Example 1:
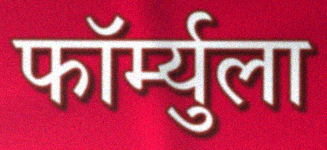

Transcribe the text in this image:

फॉर्म्युला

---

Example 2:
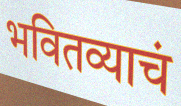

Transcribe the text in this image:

भवितव्याचं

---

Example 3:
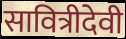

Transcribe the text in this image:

सावित्रीदेवी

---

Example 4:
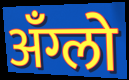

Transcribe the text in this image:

अँग्लो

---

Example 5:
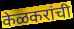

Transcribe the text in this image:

केळकरांची